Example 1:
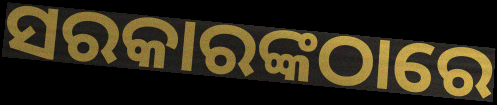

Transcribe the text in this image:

ସରକାରଙ୍କଠାରେ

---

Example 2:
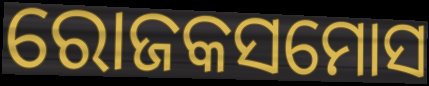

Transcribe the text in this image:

ରୋଜକସମୋସ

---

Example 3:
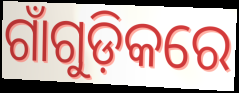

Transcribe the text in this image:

ଗାଁଗୁଡ଼ିକରେ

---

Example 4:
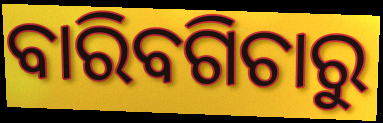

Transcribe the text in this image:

ବାରିବଗିଚାରୁ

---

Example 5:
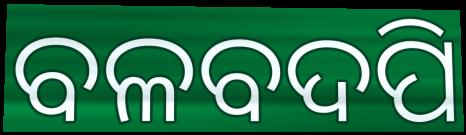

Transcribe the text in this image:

ବଳବଦପି